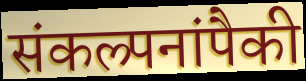
संकल्पनांपैकी